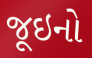
જૂઇનો